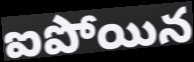
ఐపోయిన